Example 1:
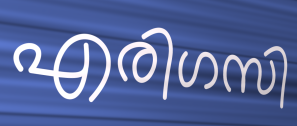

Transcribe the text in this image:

എരിഗസി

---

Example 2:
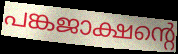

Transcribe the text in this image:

പങ്കജാക്ഷന്റെ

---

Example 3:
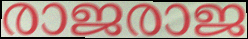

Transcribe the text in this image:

രാജരാജ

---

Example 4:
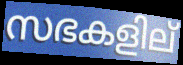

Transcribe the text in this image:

സഭകളില്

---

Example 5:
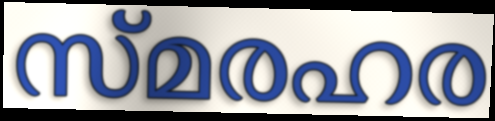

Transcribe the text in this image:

സ്മരഹര